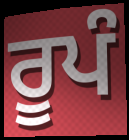
ਰੂਪੰ